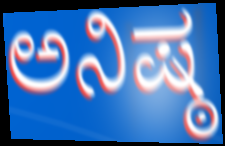
ಅನಿಷ್ಠ